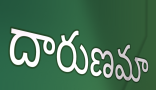
దారుణమా